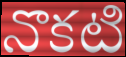
నొకటి